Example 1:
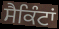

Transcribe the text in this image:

ਸੈਕਿੰਟਾਂ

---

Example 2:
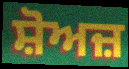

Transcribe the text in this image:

ਸ਼ੋਅਜ਼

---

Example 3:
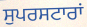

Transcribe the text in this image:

ਸੁਪਰਸਟਾਰਾਂ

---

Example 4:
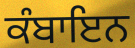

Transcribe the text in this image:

ਕੰਬਾਇਨ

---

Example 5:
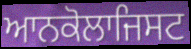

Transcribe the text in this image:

ਆਨਕੋਲਾਜਿਸਟ